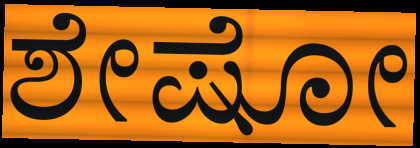
ಶೇಷೋ